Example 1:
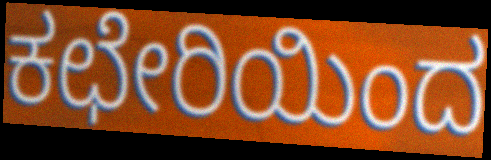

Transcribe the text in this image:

ಕಛೇರಿಯಿಂದ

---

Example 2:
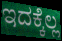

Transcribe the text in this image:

ಇದಕ್ಕೆಲ್ಲ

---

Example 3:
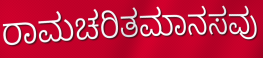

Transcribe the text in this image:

ರಾಮಚರಿತಮಾನಸವು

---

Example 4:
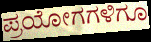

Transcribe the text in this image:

ಪ್ರಯೋಗಗಳಿಗೂ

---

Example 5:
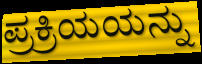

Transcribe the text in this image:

ಪ್ರಕ್ರಿಯಯನ್ನು